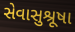
સેવાસુશ્રૂષા